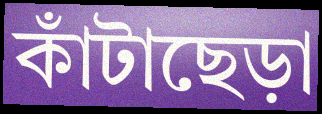
কাঁটাছেড়া